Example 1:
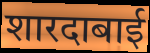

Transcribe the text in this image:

शारदाबाई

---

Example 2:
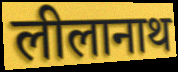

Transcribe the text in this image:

लीलानाथ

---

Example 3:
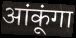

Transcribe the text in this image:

आंकूंगा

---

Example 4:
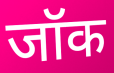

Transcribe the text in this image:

जॉक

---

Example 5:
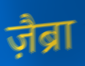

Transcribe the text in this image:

ज़ैब्रा